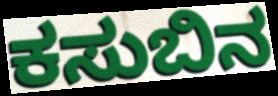
ಕಸುಬಿನ